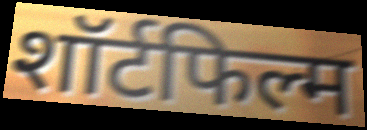
शॉर्टफिल्म